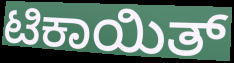
ಟಿಕಾಯಿತ್